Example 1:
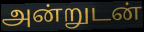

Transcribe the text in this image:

அன்றுடன்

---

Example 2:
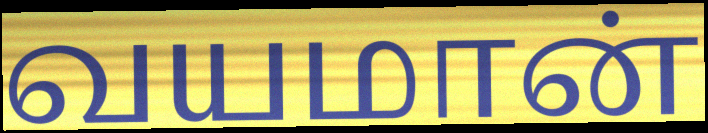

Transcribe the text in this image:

வயமான்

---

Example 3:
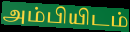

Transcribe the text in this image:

அம்பியிடம்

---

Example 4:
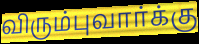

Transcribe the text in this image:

விரும்புவார்க்கு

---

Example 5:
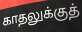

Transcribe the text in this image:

காதலுக்குத்